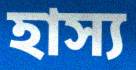
হাস্য